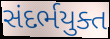
સંદર્ભયુક્ત